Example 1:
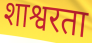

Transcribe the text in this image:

शाश्वरता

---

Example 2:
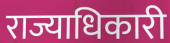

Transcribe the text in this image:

राज्याधिकारी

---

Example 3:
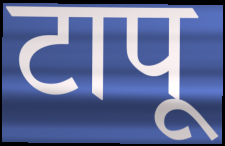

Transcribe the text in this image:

टापू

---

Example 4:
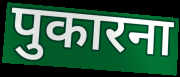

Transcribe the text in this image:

पुकारना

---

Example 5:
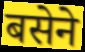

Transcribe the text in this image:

बसेने